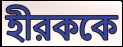
হীরককে